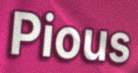
Pious